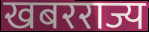
खबरराज्य